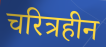
चरित्रहीन